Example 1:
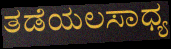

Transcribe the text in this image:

ತಡೆಯಲಸಾಧ್ಯ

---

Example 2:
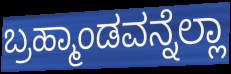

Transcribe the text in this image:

ಬ್ರಹ್ಮಾಂಡವನ್ನೆಲ್ಲಾ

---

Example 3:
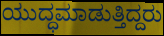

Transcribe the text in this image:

ಯುದ್ಧಮಾಡುತ್ತಿದ್ದರು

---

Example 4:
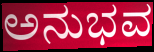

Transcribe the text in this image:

ಅನುಭವ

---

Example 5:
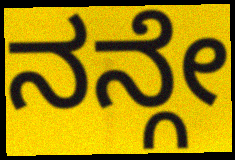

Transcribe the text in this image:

ನನ್ಗೇ